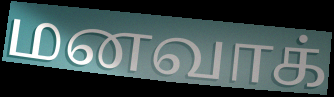
மனவாக்